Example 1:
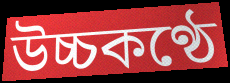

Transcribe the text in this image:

উচ্চকণ্ঠে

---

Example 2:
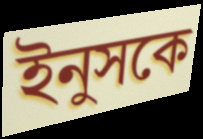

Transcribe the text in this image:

ইনুসকে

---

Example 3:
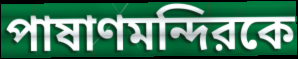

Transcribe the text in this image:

পাষাণমন্দিরকে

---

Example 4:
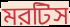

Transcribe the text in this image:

মরটিস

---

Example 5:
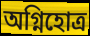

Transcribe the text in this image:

অগ্নিহোত্র